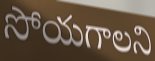
సోయగాలని